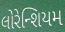
લોરેન્શિયમ